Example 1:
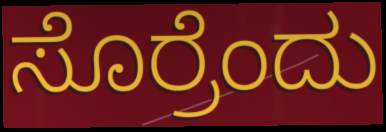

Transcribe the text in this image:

ಸೊರ್ರೆಂದು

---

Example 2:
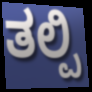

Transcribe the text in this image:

ತಲ್ಪಿ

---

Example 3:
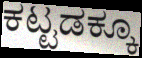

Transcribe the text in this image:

ಕಟ್ಟಡಕ್ಕೂ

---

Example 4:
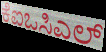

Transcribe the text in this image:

ಕೆಐಒಸಿಎಲ್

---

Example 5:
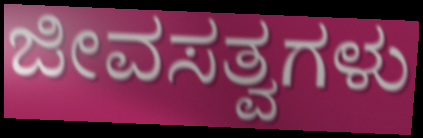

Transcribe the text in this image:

ಜೀವಸತ್ವಗಳು